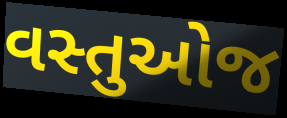
વસ્તુઓજ